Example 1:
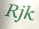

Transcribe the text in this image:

Rjk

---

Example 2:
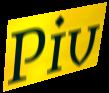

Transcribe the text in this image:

Piu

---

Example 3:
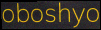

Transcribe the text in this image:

oboshyo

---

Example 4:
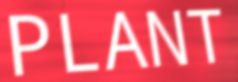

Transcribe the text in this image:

PLANT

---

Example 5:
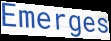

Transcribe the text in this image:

Emerges